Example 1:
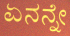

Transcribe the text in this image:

ಏನನ್ನೇ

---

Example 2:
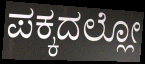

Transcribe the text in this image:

ಪಕ್ಕದಲ್ಲೋ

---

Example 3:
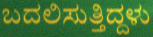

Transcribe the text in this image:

ಬದಲಿಸುತ್ತಿದ್ದಳು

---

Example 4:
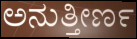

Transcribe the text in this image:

ಅನುತ್ತೀರ್ಣ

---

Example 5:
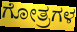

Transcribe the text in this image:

ಗೋತ್ರಗಳ